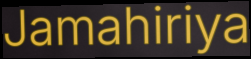
Jamahiriya